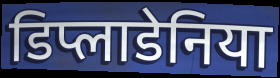
डिप्लाडेनिया